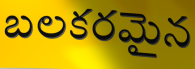
బలకరమైన